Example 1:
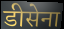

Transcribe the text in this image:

डीसेना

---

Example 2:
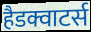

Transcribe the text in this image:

हैडक्वाटर्स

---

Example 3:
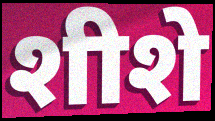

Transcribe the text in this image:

शीशे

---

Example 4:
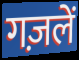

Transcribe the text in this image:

गज़लें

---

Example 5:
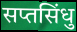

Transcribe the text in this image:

सप्तसिंधु